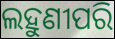
ଲହୁଣୀପରି